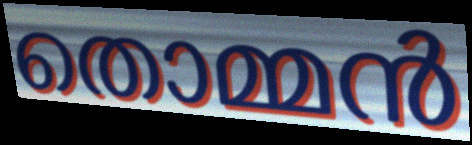
തൊമ്മൻ